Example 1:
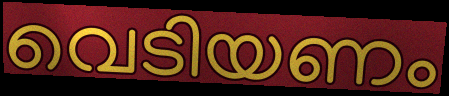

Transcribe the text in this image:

വെടിയണം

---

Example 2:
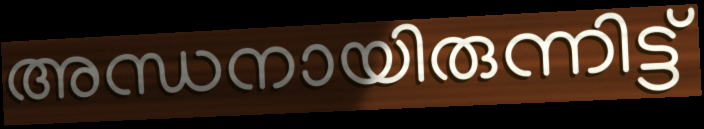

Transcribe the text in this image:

അന്ധനായിരുന്നിട്ട്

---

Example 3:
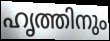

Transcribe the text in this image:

ഹൃത്തിനും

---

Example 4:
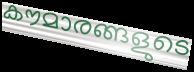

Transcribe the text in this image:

കൗമാരങ്ങളുടെ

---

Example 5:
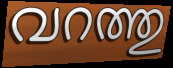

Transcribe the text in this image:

വറത്തു